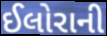
ઈલોરાની